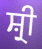
ਸ਼੍ਰੀ